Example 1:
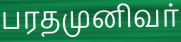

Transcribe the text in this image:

பரதமுனிவர்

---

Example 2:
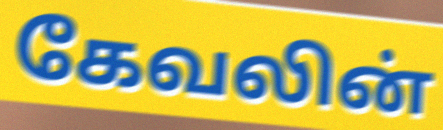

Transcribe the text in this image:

கேவலின்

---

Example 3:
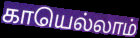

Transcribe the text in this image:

காயெல்லாம்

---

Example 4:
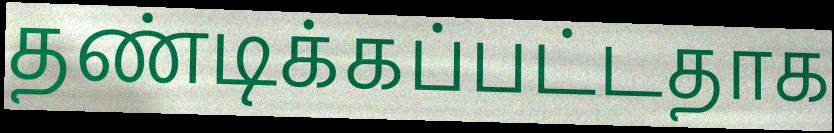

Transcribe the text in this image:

தண்டிக்கப்பட்டதாக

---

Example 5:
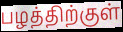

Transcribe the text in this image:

பழத்திற்குள்